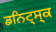
ਡਨਿਟ੍ਸ੍ਕ